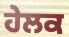
ਹੇਲਕ